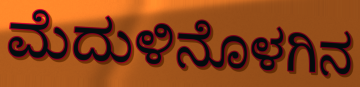
ಮೆದುಳಿನೊಳಗಿನ